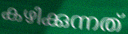
കഴിക്കുന്നത്